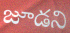
జూడని